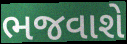
ભજવાશે